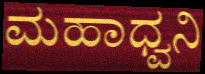
ಮಹಾಧ್ವನಿ